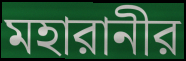
মহারানীর